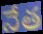
నేత